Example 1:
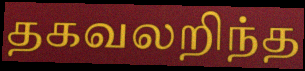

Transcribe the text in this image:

தகவலறிந்த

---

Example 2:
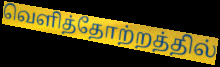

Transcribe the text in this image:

வெளித்தோற்றத்தில்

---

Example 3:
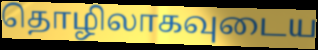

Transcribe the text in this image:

தொழிலாகவுடைய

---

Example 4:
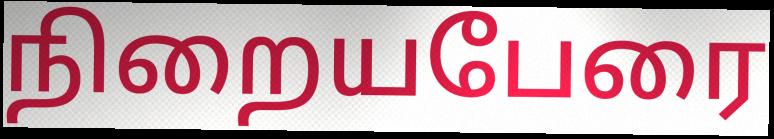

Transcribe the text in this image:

நிறையபேரை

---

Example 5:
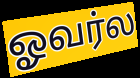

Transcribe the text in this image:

ஓவர்ல